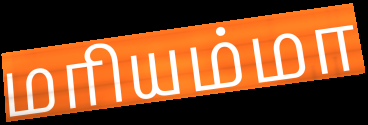
மரியம்மா